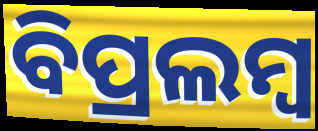
ବିପ୍ରଲମ୍ବ